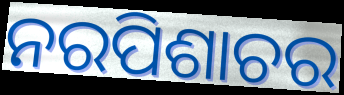
ନରପିଶାଚର